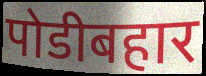
पोडीबहार